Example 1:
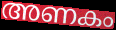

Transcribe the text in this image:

അണകം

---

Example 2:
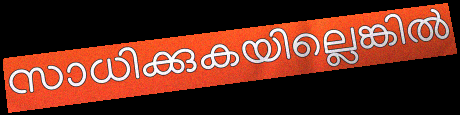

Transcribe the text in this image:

സാധിക്കുകയില്ലെങ്കിൽ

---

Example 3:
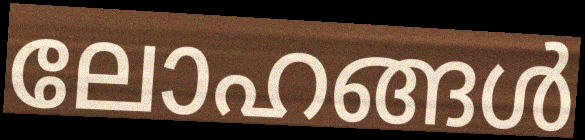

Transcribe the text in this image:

ലോഹങ്ങൾ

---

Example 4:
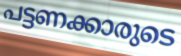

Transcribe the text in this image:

പട്ടണക്കാരുടെ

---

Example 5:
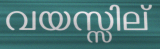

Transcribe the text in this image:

വയസ്സില്